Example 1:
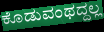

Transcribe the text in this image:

ಕೊಡುವಂಥದ್ದಲ್ಲ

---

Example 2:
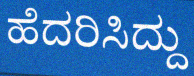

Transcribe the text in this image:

ಹೆದರಿಸಿದ್ದು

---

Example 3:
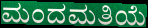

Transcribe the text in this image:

ಮಂದಮತಿಯೆ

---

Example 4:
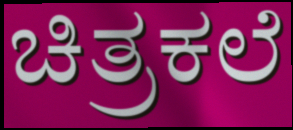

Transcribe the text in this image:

ಚಿತ್ರಕಲೆ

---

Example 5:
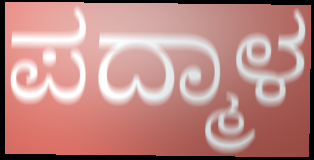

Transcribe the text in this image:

ಪದ್ಮಾಳ